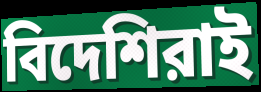
বিদেশিরাই